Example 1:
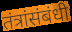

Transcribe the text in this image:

तंत्रांसंबंधी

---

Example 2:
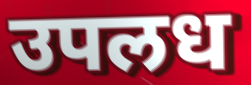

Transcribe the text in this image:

उपलध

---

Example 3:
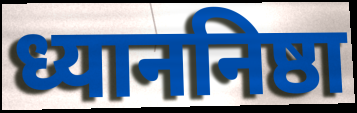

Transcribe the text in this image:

ध्याननिष्ठा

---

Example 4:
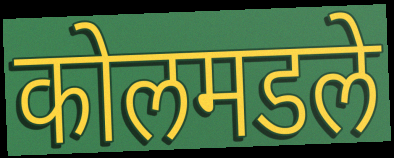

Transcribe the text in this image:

कोलमडले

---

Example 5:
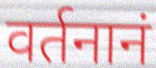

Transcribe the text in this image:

वर्तनानं